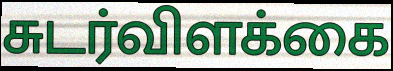
சுடர்விளக்கை